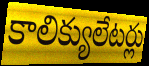
కాలిక్యులేటర్లు